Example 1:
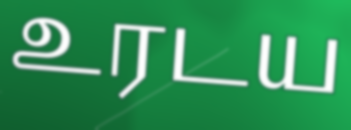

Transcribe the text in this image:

உரடய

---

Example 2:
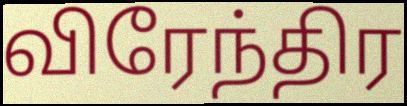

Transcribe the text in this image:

விரேந்திர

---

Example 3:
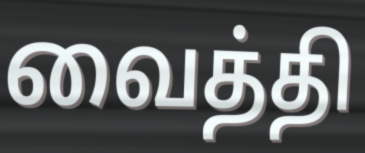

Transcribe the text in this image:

வைத்தி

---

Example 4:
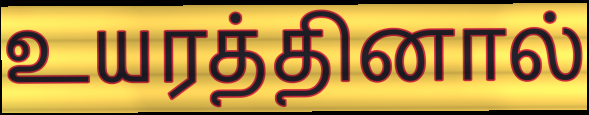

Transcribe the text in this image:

உயரத்தினால்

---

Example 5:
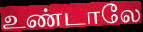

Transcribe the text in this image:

உண்டாலே